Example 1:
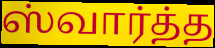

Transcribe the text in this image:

ஸ்வார்த்த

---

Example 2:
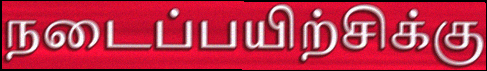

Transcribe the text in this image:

நடைப்பயிற்சிக்கு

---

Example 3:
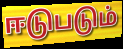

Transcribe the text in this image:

ஈடுபடும்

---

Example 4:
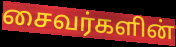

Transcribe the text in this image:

சைவர்களின்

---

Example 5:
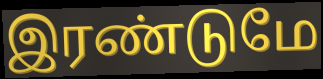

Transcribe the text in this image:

இரண்டுமே